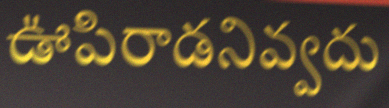
ఊపిరాడనివ్వదు